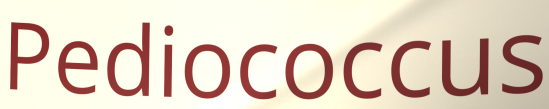
Pediococcus